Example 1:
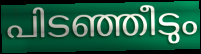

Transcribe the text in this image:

പിടഞ്ഞീടും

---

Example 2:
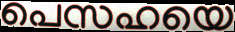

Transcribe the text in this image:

പെസഹയെ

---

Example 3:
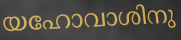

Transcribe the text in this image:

യഹോവാശിനു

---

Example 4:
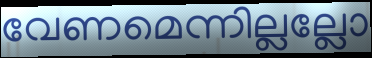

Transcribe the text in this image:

വേണമെന്നില്ലല്ലോ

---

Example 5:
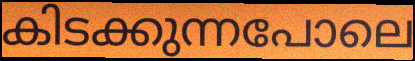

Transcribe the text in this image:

കിടക്കുന്നപോലെ